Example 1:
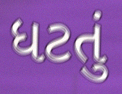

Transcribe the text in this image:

ધટતું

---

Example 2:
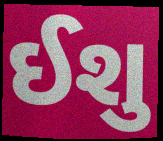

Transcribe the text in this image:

ઈશુ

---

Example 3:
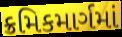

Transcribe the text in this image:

ક્રમિકમાર્ગમાં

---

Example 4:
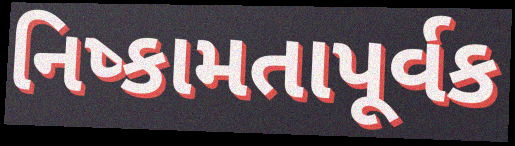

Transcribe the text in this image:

નિષ્કામતાપૂર્વક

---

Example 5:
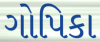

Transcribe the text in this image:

ગોપિકા